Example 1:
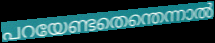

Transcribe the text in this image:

പറയേണ്ടതെന്തെന്നാൽ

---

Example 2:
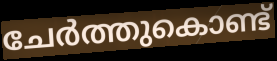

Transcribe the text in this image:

ചേർത്തുകൊണ്ട്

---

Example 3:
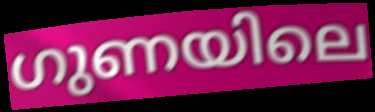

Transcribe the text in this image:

ഗുണയിലെ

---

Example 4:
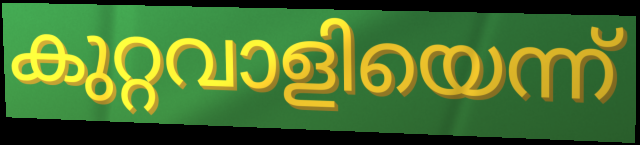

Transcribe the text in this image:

കുറ്റവാളിയെന്ന്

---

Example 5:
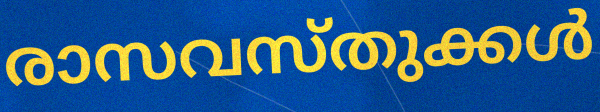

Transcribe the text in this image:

രാസവസ്തുക്കൾ